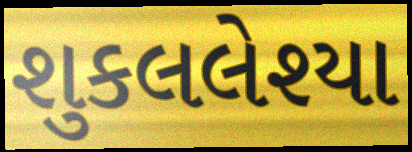
શુકલલેશ્યા